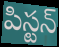
పిస్టన్